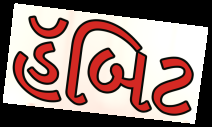
હૅબિટ